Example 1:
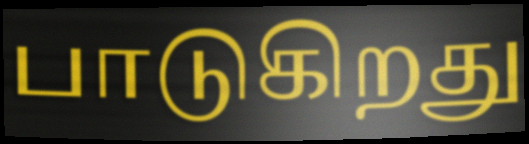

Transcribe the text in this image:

பாடுகிறது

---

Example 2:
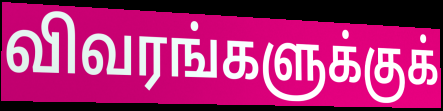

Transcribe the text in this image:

விவரங்களுக்குக்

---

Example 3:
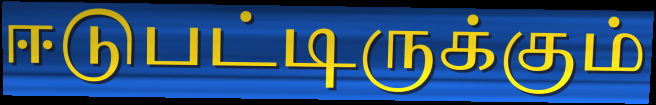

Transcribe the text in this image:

ஈடுபட்டிருக்கும்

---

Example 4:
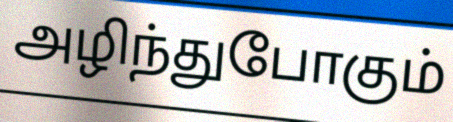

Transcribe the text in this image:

அழிந்துபோகும்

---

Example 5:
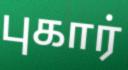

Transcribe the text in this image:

புகார்